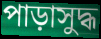
পাড়াসুদ্ধ